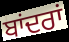
ਬਾਂਦਰਾਂ